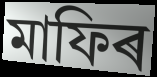
মাফিৰ